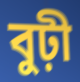
বুঢ়ী